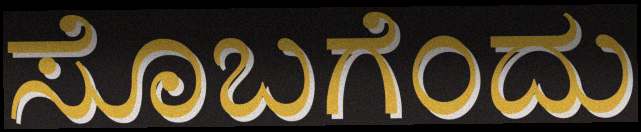
ಸೊಬಗೆಂದು